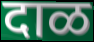
दाळ